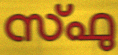
സ്ഫു